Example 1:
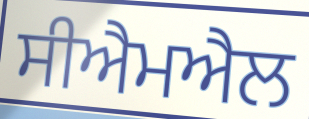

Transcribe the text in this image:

ਸੀਐਮਐਲ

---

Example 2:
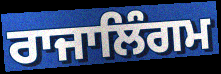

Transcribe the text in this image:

ਰਾਜਾਲਿੰਗਮ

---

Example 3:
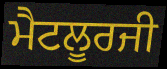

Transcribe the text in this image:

ਮੈਟਲੂਰਜੀ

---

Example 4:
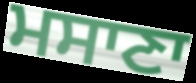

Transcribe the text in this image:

ਮਸਾਣਾ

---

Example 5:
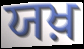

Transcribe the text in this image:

ਯਖ਼